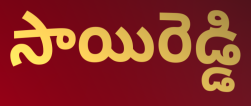
సాయిరెడ్డి